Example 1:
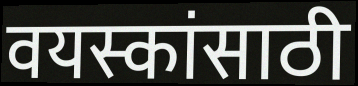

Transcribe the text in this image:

वयस्कांसाठी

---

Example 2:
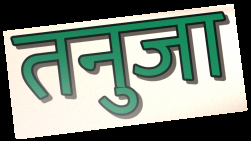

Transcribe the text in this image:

तनुजा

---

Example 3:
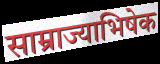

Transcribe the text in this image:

साम्राज्याभिषेक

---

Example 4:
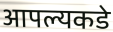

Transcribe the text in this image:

आपल्यकडे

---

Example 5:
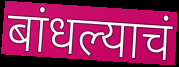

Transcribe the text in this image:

बांधल्याचं